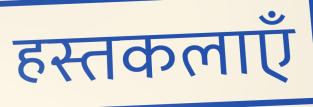
हस्तकलाएँ